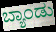
ಬ್ಯಾಂಡು